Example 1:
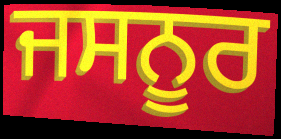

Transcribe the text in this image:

ਜਸਨੂਰ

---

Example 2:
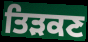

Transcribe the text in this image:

ਤਿੜਕਣ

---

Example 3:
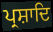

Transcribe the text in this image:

ਪ੍ਰਸ਼ਾਦਿ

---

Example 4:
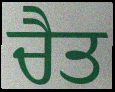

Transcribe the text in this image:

ਚੈਤ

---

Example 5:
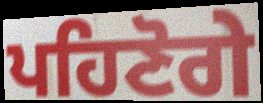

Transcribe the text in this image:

ਪਹਿਣੋਗੇ